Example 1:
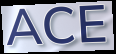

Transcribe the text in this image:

ACE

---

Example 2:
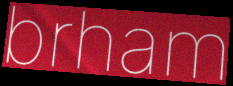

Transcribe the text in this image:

brham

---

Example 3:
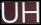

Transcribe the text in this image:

UH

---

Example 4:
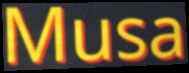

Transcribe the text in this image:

Musa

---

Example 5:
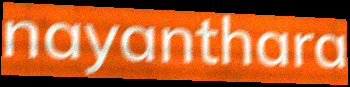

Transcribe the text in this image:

nayanthara